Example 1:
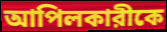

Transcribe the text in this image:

আপিলকারীকে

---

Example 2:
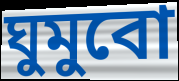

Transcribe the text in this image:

ঘুমুবো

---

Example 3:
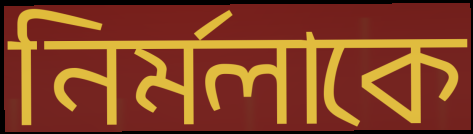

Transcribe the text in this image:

নির্মলাকে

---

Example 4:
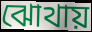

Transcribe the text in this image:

ঝোথায়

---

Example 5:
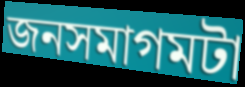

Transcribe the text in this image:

জনসমাগমটা